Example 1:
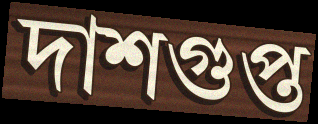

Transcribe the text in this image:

দাশগুপ্ত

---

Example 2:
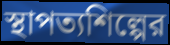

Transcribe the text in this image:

স্থাপত্যশিল্পের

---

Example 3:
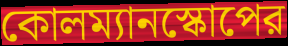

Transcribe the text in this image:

কোলম্যানস্কোপের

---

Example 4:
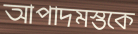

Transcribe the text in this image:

আপাদমস্তকে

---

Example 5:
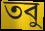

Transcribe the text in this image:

তবু